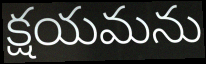
క్షయమను